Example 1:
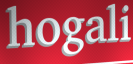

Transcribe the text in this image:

hogali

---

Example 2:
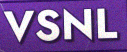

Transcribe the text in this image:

VSNL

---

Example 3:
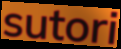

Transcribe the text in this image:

sutori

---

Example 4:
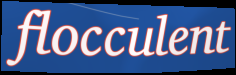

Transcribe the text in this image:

flocculent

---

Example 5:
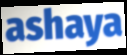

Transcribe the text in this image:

ashaya